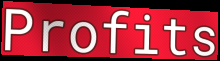
Profits